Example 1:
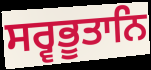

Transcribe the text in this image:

ਸਰ੍ਵਭੂਤਾਨਿ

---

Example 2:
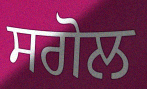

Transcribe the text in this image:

ਸਗੋਲ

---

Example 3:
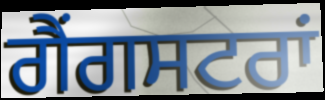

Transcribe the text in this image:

ਗੈਂਗਸਟਰਾਂ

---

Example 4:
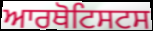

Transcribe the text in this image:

ਆਰਥੋਟਿਸਟਸ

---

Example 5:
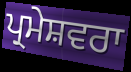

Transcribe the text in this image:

ਪ੍ਰਮੇਸ਼ਵਰਾ